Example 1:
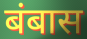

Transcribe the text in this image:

बंबास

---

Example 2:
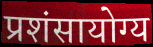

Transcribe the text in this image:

प्रशंसायोग्य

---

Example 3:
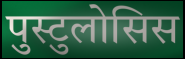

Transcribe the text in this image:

पुस्टुलोसिस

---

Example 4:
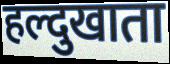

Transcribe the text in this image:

हल्दुखाता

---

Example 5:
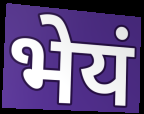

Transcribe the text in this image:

भेयं